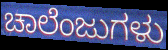
ಚಾಲೆಂಜುಗಳು